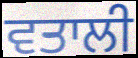
ਵਤਾਲੀ